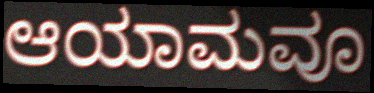
ಆಯಾಮವೂ